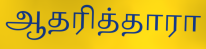
ஆதரித்தாரா